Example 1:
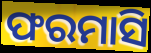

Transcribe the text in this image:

ଫରମାସି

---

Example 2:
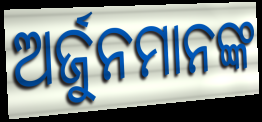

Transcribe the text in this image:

ଅର୍ଜୁନମାନଙ୍କ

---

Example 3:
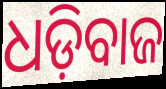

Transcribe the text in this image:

ଧଡ଼ିବାଜ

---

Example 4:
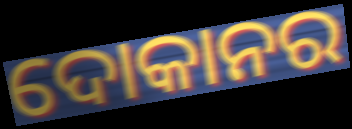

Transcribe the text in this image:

ଦୋକାନର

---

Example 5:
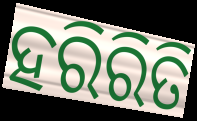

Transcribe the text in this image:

ହରିରିତି